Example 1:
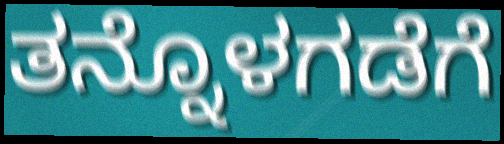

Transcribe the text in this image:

ತನ್ನೊಳಗಡೆಗೆ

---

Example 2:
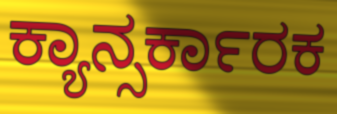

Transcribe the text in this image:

ಕ್ಯಾನ್ಸರ್ಕಾರಕ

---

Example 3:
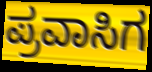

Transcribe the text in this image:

ಪ್ರವಾಸಿಗ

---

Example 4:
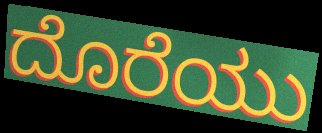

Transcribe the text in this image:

ದೊರೆಯು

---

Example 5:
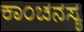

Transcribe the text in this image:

ಕಾಂಚನಸ್ಯ